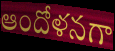
ఆందోళనగా